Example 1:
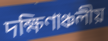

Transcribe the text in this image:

দক্ষিণাঞ্চলীয়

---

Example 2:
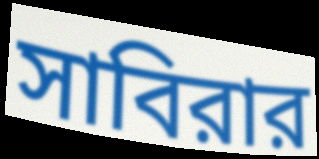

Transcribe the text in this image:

সাবিরার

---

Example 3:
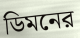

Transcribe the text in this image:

ডিমনের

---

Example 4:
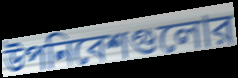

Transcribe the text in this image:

উপনিবেশগুলোর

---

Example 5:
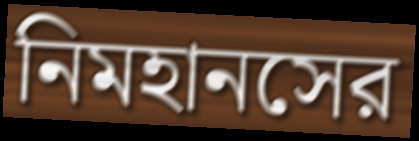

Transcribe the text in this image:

নিমহানসের